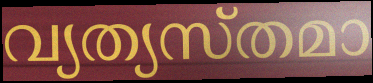
വ്യത്യസ്തമാ